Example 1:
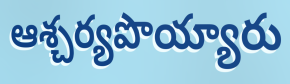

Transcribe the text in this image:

ఆశ్చర్యపొయ్యారు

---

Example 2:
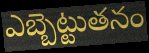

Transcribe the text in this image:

ఎబ్బెట్టుతనం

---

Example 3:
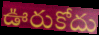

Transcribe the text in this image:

ఊరుకోదు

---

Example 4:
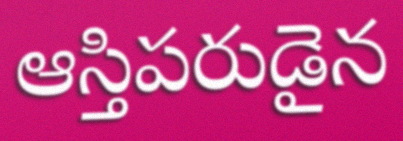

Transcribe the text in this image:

ఆస్తిపరుడైన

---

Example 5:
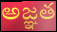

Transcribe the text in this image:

అజ్ఞత